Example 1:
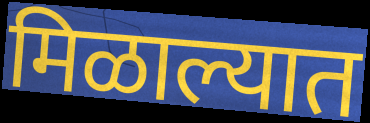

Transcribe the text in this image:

मिळाल्यात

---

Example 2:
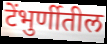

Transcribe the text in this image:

टेंभुर्णीतील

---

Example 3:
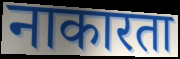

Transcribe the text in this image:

नाकारता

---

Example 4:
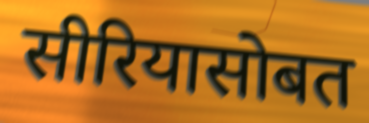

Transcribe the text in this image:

सीरियासोबत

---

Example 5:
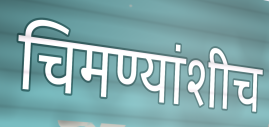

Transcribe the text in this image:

चिमण्यांशीच